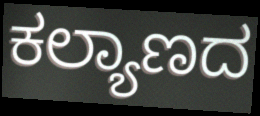
ಕಲ್ಯಾಣದ